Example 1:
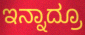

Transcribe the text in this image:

ಇನ್ನಾದ್ರೂ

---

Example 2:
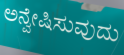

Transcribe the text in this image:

ಅನ್ವೇಷಿಸುವುದು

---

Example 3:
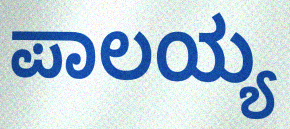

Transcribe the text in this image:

ಪಾಲಯ್ಯ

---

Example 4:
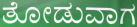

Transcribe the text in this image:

ತೋಡುವಾಗ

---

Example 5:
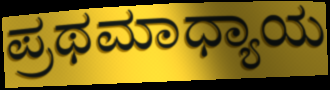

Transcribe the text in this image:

ಪ್ರಥಮಾಧ್ಯಾಯ